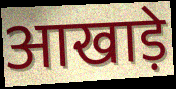
आखाड़े